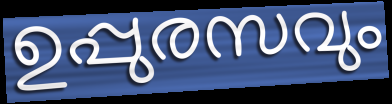
ഉപ്പുരസവും